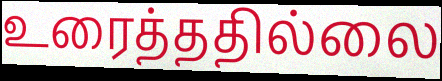
உரைத்ததில்லை